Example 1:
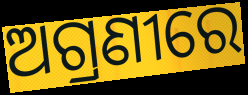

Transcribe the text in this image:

ଅଗ୍ରଣୀରେ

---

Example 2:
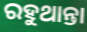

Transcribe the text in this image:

ରହୁଥାନ୍ତା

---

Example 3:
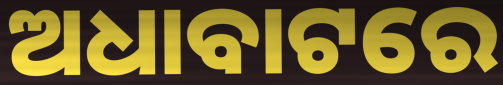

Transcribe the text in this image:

ଅଧାବାଟରେ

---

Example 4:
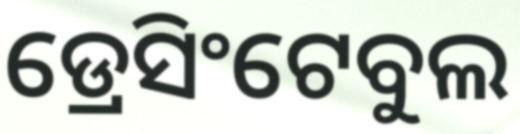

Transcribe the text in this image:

ଡ୍ରେସିଂଟେବୁଲ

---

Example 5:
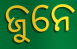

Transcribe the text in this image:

ଜୁନେ